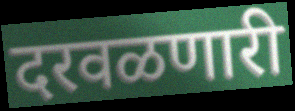
दरवळणारी